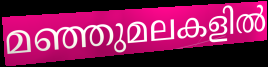
മഞ്ഞുമലകളിൽ